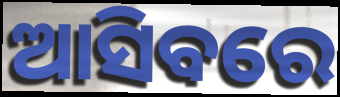
ଆସିବରେ